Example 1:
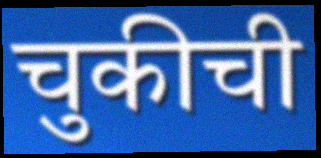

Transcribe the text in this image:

चुकीची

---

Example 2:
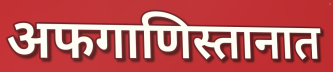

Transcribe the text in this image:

अफगाणिस्तानात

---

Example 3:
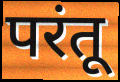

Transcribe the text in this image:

परंतू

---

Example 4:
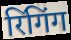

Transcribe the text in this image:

रिंगिंग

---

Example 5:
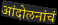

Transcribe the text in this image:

आंदोलनांचं